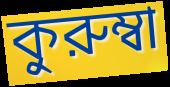
কুৰুম্বা